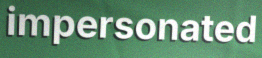
impersonated